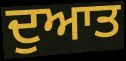
ਦੁਆਤ